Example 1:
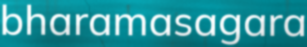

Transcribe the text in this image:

bharamasagara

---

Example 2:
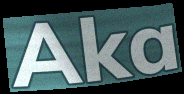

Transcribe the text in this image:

Aka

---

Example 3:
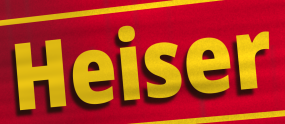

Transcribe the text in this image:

Heiser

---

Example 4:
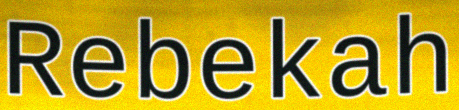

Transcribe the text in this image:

Rebekah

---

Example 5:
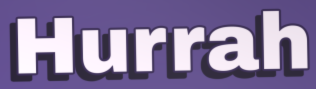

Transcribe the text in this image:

Hurrah